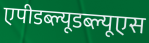
एपीडब्ल्यूडब्ल्यूएस